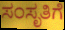
ಸಂಸೃತಿಗೆ